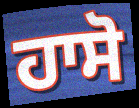
ਹਾਸੋ